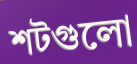
শটগুলো